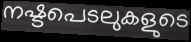
നഷ്ടപെടലുകളുടെ